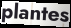
plantes